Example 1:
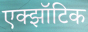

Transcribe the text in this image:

एक्झॉटिक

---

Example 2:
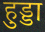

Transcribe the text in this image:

हुड्डा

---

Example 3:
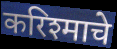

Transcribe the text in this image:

करिश्माचे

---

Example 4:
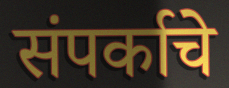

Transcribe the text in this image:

संपर्काचे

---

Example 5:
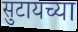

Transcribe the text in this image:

सुटायच्या